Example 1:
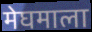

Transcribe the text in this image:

मेघमाला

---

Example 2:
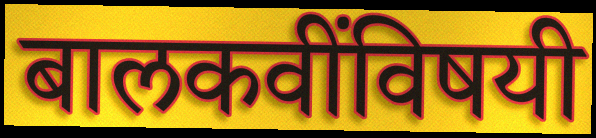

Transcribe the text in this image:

बालकवींविषयी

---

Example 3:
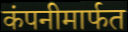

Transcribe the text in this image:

कंपनीमार्फत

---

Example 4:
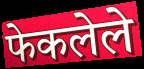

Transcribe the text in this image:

फेकलेले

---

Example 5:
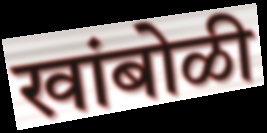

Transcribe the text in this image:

खांबोळी